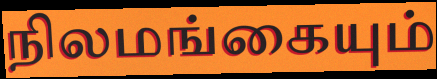
நிலமங்கையும்